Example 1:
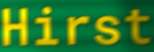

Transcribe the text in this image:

Hirst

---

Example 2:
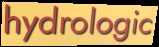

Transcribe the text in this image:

hydrologic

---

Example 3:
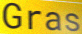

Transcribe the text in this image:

Gras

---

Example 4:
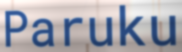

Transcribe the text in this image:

Paruku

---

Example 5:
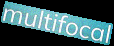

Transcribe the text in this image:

multifocal